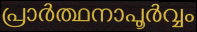
പ്രാർത്ഥനാപൂർവ്വം